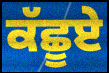
ਕੱਛੂਏ